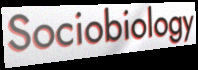
Sociobiology